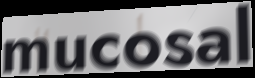
mucosal